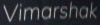
Vimarshak